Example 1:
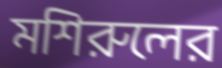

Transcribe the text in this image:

মশিরুলের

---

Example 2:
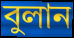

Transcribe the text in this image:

বুলান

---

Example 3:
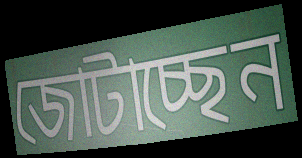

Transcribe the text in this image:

জোটাচ্ছেন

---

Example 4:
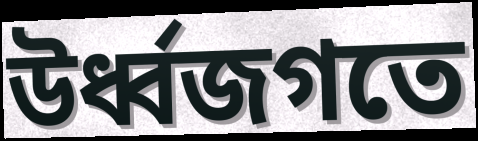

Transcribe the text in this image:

উর্ধ্বজগতে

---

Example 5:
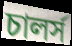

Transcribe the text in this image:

চালর্স